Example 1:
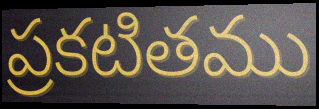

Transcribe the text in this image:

ప్రకటితము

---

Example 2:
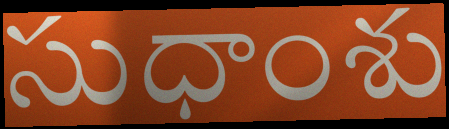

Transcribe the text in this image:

సుధాంశు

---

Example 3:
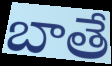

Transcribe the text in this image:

బాతే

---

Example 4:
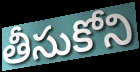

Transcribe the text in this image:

తీసుకోని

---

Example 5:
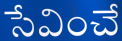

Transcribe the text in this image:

సేవించే